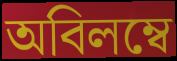
অবিলম্বে